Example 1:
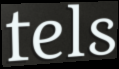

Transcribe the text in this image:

tels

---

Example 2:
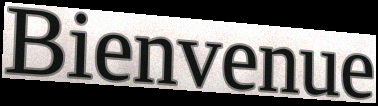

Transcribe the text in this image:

Bienvenue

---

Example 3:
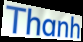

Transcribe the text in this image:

Thanh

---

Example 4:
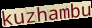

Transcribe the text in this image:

kuzhambu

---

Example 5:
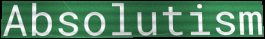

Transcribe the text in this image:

Absolutism